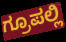
ಗ್ರೂಪಲ್ಲಿ